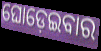
ଘୋଡ଼େଇବାର